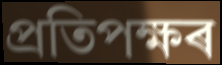
প্ৰতিপক্ষৰ